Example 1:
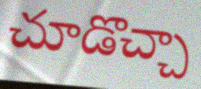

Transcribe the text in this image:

చూడొచ్చా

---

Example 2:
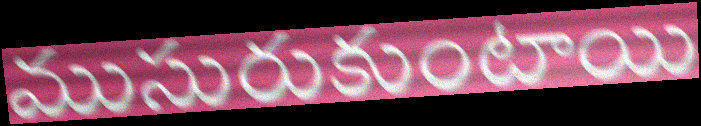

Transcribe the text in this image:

ముసురుకుంటాయి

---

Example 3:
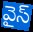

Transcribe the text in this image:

వైస్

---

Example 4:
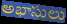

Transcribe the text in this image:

అభాసులు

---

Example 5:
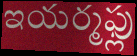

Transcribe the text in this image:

ఇయర్మఫ్లు